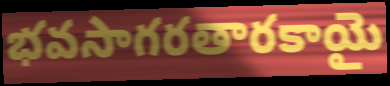
భవసాగరతారకాయై